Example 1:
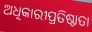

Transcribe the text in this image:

ଅଧିକାରୀପ୍ରତିଷ୍ଠାତା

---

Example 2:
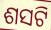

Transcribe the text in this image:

ଶସଟି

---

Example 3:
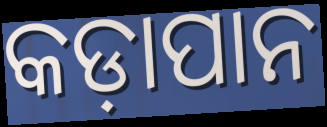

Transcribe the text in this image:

କଡ଼ାପାନ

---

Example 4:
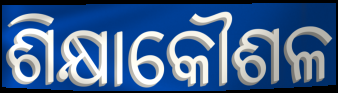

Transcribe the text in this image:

ଶିକ୍ଷାକୌଶଳ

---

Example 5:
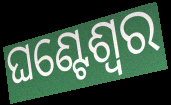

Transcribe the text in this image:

ଘଣ୍ଟେଶ୍ୱର